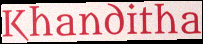
Khanditha